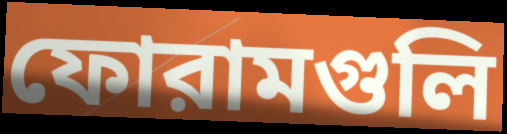
ফোরামগুলি